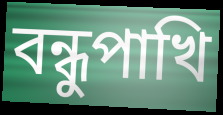
বন্ধুপাখি